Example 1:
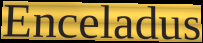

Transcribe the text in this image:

Enceladus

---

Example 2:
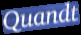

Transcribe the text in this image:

Quandt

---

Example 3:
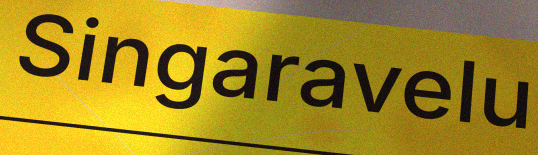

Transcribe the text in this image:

Singaravelu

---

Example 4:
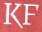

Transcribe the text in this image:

KF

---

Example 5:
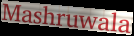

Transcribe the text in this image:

Mashruwala